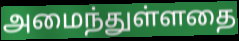
அமைந்துள்ளதை